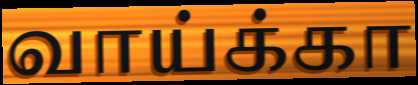
வாய்க்கா